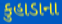
કુહાડાના